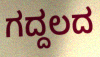
ಗದ್ದಲದ